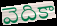
వెదికా